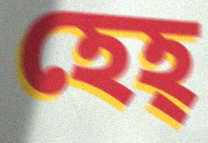
হেহ্